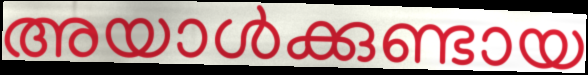
അയാൾക്കുണ്ടായ